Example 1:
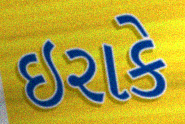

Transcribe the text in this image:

ઇરાકે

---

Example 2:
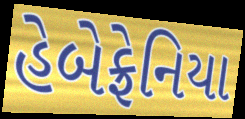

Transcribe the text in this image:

હેબેફ્રેનિયા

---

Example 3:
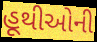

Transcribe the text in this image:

હૂથીઓની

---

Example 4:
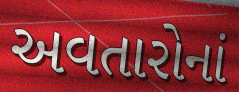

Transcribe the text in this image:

અવતારોનાં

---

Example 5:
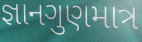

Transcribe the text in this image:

જ્ઞાનગુણમાત્ર